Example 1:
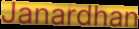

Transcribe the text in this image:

Janardhan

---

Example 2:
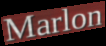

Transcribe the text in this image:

Marlon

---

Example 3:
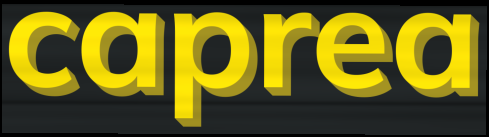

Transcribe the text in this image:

caprea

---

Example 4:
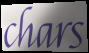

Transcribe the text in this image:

chars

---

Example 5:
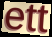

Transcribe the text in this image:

ett